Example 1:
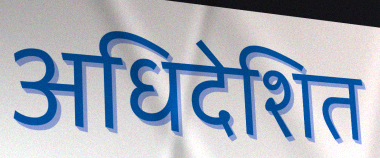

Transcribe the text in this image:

अधिदेशित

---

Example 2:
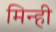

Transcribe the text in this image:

मिन्ही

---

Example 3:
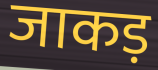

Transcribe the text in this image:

जाकड़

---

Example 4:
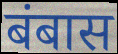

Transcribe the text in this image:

बंबास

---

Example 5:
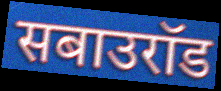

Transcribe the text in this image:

सबाउरॉड